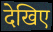
देखिए